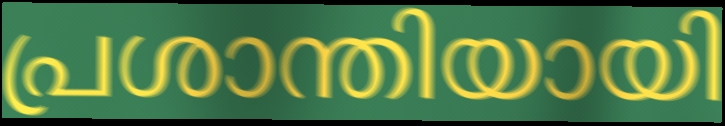
പ്രശാന്തിയായി